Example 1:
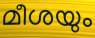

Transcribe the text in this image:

മീശയും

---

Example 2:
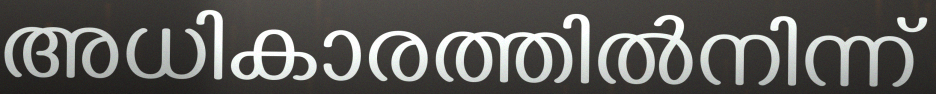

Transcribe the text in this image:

അധികാരത്തിൽനിന്ന്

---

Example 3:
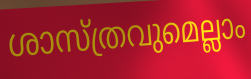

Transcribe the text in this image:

ശാസ്ത്രവുമെല്ലാം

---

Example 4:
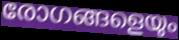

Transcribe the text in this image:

രോഗങ്ങളെയും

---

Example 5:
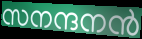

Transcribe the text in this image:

സനന്ദനൻ